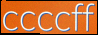
ccccff